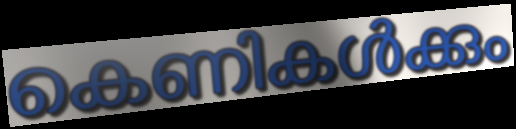
കെണികൾക്കും